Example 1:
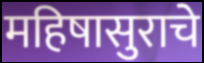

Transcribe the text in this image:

महिषासुराचे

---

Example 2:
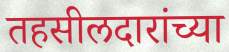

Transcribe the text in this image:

तहसीलदारांच्या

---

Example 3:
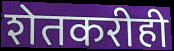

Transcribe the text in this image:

शेतकरीही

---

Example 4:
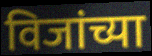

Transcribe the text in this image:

विजांच्या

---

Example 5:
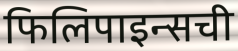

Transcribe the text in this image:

फिलिपाइन्सची